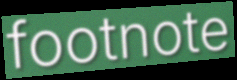
footnote